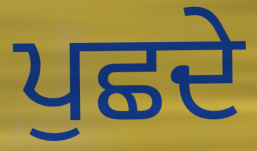
ਪੁਛਦੇ